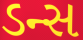
ડન્સ